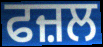
ਫਜ਼ਲ